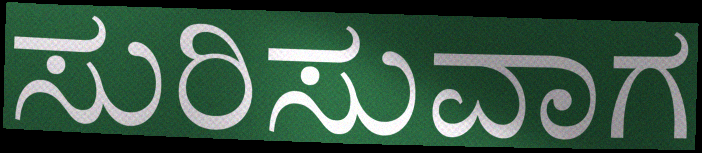
ಸುರಿಸುವಾಗ